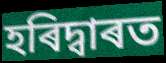
হৰিদ্বাৰত